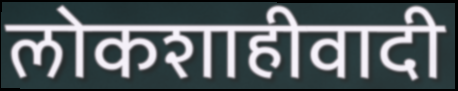
लोकशाहीवादी